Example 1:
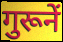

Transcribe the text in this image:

गुरूनें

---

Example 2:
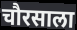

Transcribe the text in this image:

चौरसाला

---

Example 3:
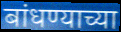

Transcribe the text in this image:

बांधण्याच्या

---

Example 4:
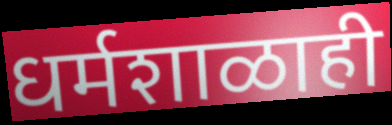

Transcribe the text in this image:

धर्मशाळाही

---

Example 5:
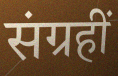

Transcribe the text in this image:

संग्रहीं